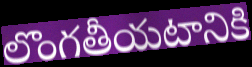
లొంగతీయటానికి